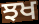
ਝਖ